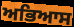
ਅਭਿਆਸ